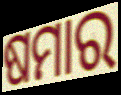
ଷମାର